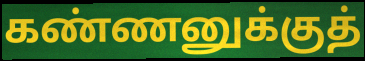
கண்ணனுக்குத்